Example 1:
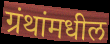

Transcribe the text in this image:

ग्रंथांमधील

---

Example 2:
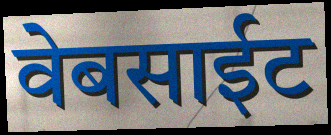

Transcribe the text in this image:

वेबसाईट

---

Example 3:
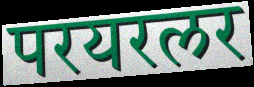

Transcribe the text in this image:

परयरलर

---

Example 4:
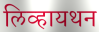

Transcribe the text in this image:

लिव्हायथन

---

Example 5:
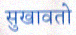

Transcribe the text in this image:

सुखावतो